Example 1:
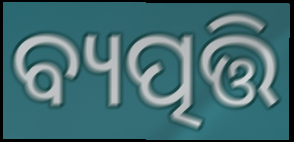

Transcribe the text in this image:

ବ୍ୟତ୍ପତ୍ତି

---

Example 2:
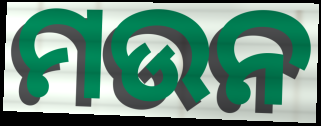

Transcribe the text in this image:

ମଉନ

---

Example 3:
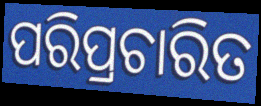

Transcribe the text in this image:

ପରିପ୍ରଚାରିତ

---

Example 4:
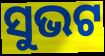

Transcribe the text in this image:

ସୁଭଟ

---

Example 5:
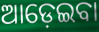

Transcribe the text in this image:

ଆଡ଼େଇବା